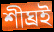
শীঘ্ৰই